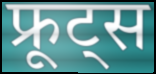
फ्रूट्स